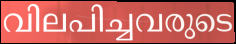
വിലപിച്ചവരുടെ